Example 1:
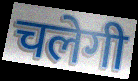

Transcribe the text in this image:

चलेगी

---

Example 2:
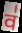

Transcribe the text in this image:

व॑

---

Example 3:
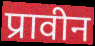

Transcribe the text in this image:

प्रावीन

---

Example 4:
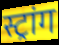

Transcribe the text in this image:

स्ट्रांग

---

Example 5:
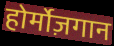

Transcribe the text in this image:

होर्मोज़गान